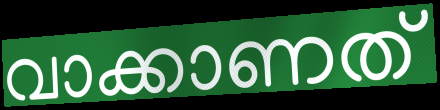
വാക്കാണത്